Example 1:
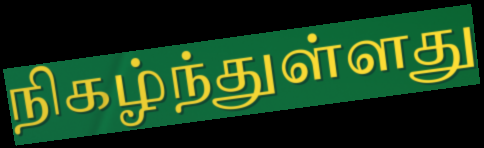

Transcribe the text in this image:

நிகழ்ந்துள்ளது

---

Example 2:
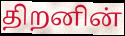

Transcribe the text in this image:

திறனின்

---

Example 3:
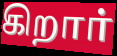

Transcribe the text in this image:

கிறார்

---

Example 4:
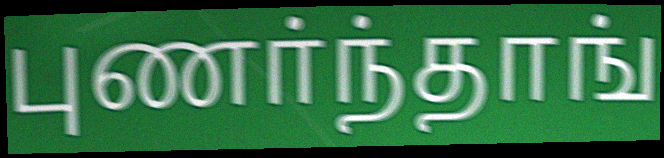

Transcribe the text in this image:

புணர்ந்தாங்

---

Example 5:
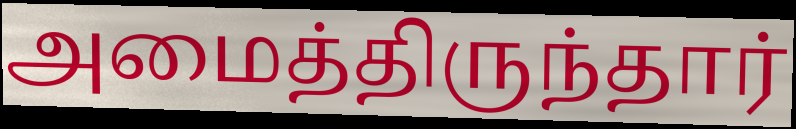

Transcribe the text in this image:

அமைத்திருந்தார்